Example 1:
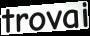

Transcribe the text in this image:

trovai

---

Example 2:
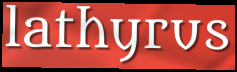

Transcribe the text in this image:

lathyrus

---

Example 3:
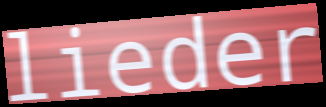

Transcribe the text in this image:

lieder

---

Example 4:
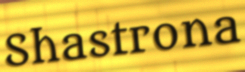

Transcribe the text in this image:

Shastrona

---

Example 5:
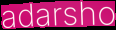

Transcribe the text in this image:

adarsho